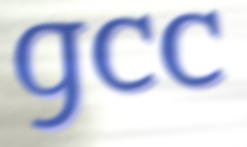
gcc